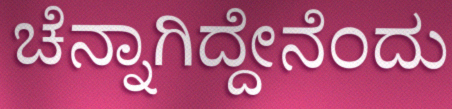
ಚೆನ್ನಾಗಿದ್ದೇನೆಂದು